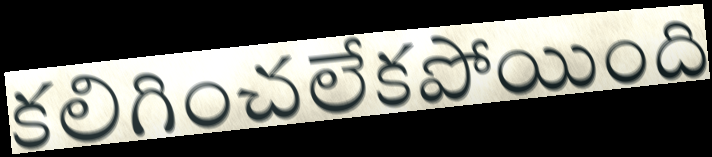
కలిగించలేకపోయింది